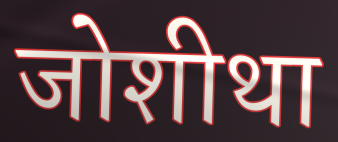
जोशीथा